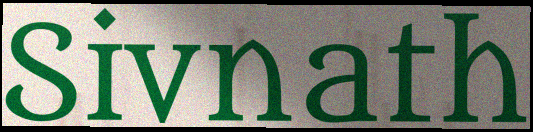
Sivnath